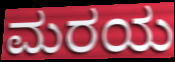
ಮರಯ